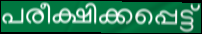
പരീക്ഷിക്കപ്പെട്ട്